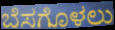
ಬೆಸಗೊಳಲು